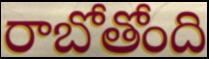
రాబోతోంది